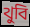
থুবি